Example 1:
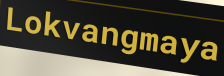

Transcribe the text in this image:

Lokvangmaya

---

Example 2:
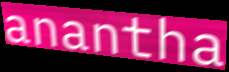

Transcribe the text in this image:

anantha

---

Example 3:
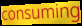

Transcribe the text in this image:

consuming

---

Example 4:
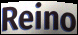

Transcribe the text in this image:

Reino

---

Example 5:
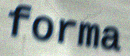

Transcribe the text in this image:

forma